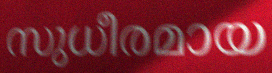
സുധീരമായ